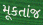
મૂકતાંજ